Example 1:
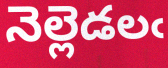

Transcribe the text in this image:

నెల్లెడలఁ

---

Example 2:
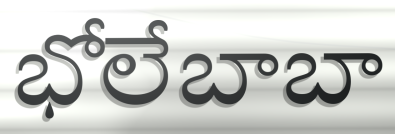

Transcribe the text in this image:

భోలేబాబా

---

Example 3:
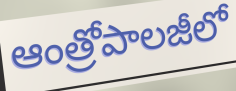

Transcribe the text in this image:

ఆంత్రోపాలజీలో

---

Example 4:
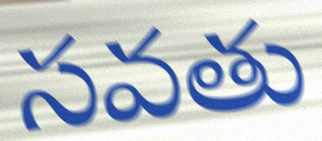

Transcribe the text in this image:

సవతు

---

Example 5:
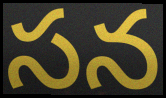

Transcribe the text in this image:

సన